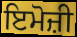
ਇਮੋਜ਼ੀ